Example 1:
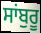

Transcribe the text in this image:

ਸਾਂਬੁਰੂ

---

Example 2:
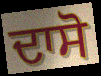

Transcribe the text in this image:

ਦਾਸੋ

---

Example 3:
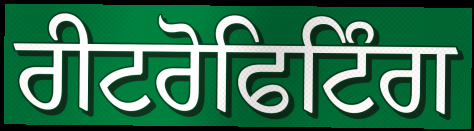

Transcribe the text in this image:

ਰੀਟਰੋਫਿਟਿੰਗ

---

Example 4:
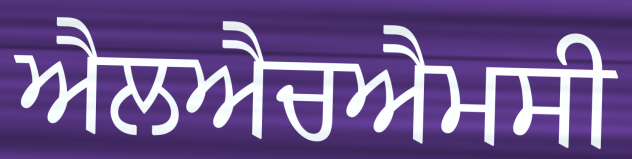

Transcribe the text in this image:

ਐਲਐਚਐਮਸੀ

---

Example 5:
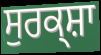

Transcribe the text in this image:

ਸੁਰਕ੍ਸ਼ਾ